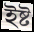
ইষ্ট